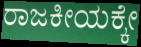
ರಾಜಕೀಯಕ್ಕೇ